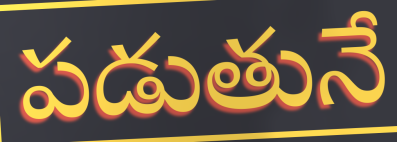
పడుతునే